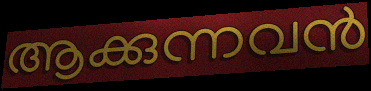
ആക്കുന്നവൻ